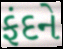
ફંદને